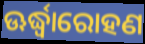
ଊର୍ଦ୍ଧ୍ୱାରୋହଣ